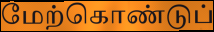
மேற்கொண்டுப்